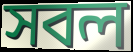
সবল